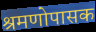
श्रमणोपासक